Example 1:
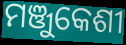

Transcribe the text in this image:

ମଞ୍ଜୁକେଶୀ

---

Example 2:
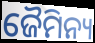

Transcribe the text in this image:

ଜୈମିନ୍ୟ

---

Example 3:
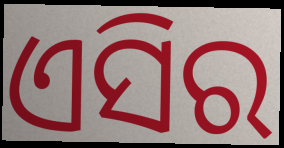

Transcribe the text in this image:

ଏସିର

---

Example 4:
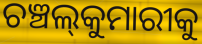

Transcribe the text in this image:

ଚଞ୍ଚଲ୍‍କୁମାରୀକୁ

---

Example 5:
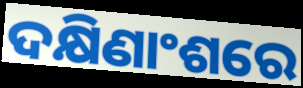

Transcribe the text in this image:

ଦକ୍ଷିଣାଂଶରେ